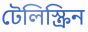
টেলিস্ক্রিন